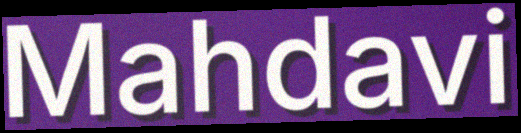
Mahdavi